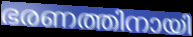
ഭരണത്തിനായി